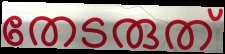
തേടരുത്